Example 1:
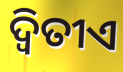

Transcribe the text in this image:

ଦ୍ୱିତୀଏ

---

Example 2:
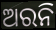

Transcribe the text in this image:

ଅରନି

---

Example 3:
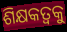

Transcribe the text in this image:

ଶିକ୍ଷକତ୍ଵକୁ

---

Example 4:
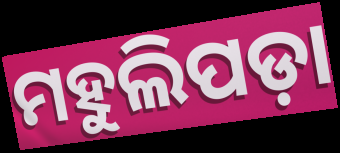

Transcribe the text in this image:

ମହୁଲିପଡ଼ା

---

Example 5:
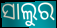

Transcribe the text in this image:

ସାଲୁର